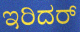
ಇರಿದರ್